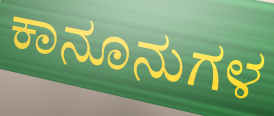
ಕಾನೂನುಗಳ